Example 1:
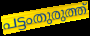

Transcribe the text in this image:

പട്ടംതുരുത്ത്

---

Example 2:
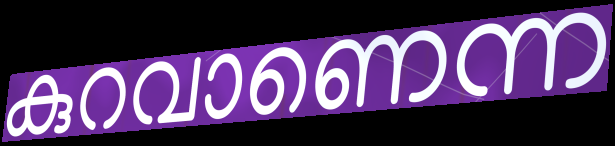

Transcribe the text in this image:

കുറവാണെന്ന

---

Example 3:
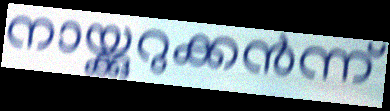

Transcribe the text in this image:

നായ്ക്കുറുക്കൻന്ന്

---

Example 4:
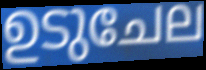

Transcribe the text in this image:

ഉടുചേല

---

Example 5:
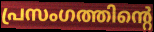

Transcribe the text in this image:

പ്രസംഗത്തിന്റെ